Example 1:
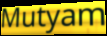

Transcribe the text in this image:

Mutyam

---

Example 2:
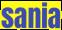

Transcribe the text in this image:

sania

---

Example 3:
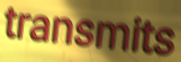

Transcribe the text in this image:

transmits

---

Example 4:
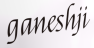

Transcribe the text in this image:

ganeshji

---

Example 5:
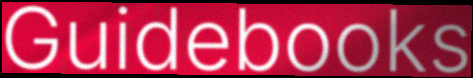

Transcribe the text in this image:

Guidebooks